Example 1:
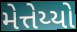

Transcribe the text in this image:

મેત્તેય્યો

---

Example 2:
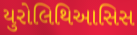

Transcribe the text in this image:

યુરોલિથિઆસિસ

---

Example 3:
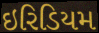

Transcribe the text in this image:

ઇરિડિયમ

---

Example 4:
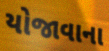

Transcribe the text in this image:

યોજાવાના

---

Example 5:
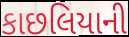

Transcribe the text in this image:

કાછલિયાની